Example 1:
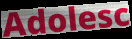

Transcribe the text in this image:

Adolesc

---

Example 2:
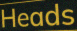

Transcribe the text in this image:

Heads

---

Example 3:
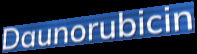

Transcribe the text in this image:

Daunorubicin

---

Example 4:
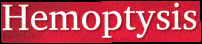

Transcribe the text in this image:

Hemoptysis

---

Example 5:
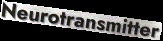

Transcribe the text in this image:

Neurotransmitter